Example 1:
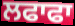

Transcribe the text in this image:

ਲਫਾਫਾ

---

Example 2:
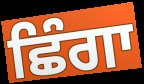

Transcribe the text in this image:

ਛਿੰਗਾ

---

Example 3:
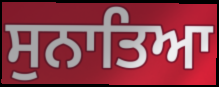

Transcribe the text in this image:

ਸੁਨਾਤਿਆ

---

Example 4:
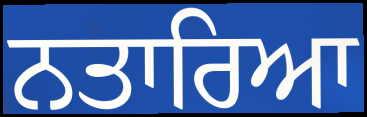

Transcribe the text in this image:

ਨਤਾਰਿਆ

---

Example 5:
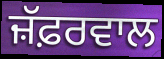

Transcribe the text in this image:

ਜ਼ੱਫ਼ਰਵਾਲ